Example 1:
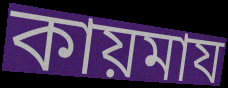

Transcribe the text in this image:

কায়মায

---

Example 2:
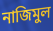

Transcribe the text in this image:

নাজিমুল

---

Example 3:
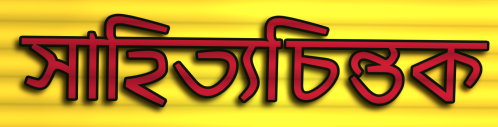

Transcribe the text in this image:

সাহিত্যচিন্তক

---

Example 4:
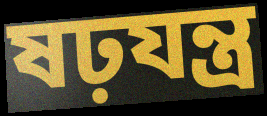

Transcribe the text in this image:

ষঢ়যন্ত্র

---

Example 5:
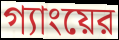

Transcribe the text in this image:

গ্যাংয়ের